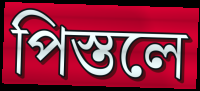
পিস্তলে